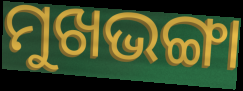
ମୁଖଭଙ୍ଗା